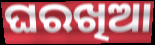
ଘରଖିଆ